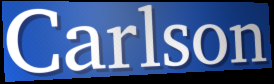
Carlson